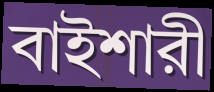
বাইশারী